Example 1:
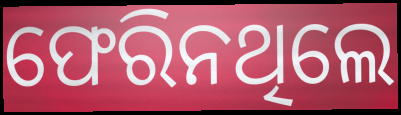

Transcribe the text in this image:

ଫେରିନଥିଲେ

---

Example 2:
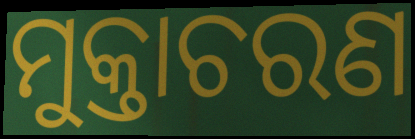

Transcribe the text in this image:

ମୁକ୍ତାଚରଣ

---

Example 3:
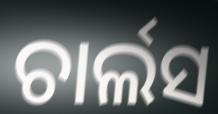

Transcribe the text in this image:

ଚାର୍ଲସ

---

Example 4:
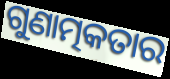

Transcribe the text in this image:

ଗୁଣାତ୍ମକତାର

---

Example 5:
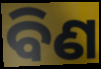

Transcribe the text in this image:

ବିଣ